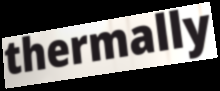
thermally